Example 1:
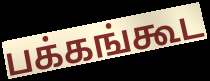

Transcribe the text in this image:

பக்கங்கூட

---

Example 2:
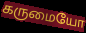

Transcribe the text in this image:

கருமையோ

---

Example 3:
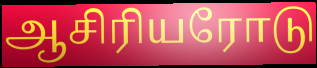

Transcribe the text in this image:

ஆசிரியரோடு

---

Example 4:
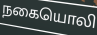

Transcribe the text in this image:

நகையொலி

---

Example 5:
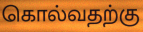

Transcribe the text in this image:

கொல்வதற்கு